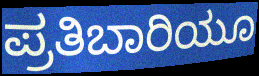
ಪ್ರತಿಬಾರಿಯೂ